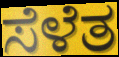
ಸೆಳೆತ